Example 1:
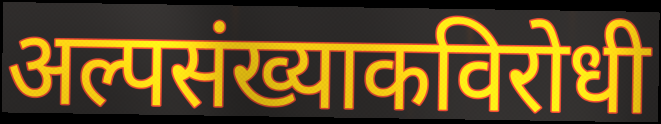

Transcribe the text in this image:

अल्पसंख्याकविरोधी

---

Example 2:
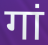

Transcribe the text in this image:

गां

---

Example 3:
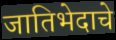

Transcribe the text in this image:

जातिभेदाचे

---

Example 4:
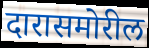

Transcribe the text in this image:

दारासमोरील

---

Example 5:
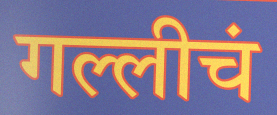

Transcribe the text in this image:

गल्लीचं